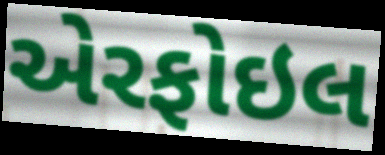
એરફોઇલ